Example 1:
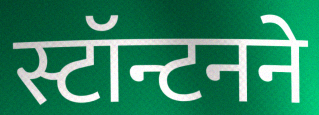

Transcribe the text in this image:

स्टॉन्टनने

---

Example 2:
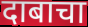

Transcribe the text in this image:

दाबाचा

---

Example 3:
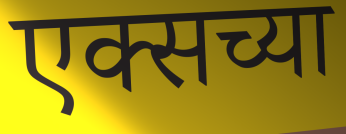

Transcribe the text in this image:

एक्सच्या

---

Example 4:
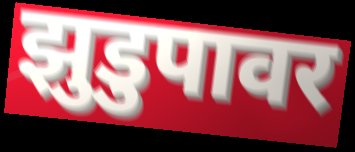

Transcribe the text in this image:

झुडुपावर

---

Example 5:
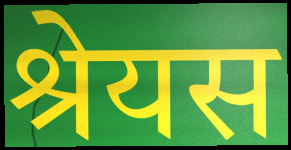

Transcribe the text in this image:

श्रेयस